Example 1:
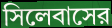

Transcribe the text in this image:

সিলেবাসের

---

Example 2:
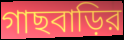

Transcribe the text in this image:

গাছবাড়ির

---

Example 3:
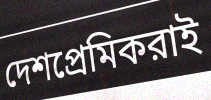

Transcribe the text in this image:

দেশপ্রেমিকরাই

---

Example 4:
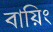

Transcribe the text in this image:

বায়িং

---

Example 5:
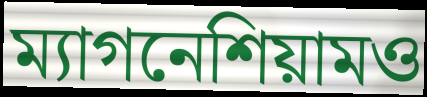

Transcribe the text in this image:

ম্যাগনেশিয়ামও